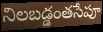
నిలబడ్డంతసేపూ